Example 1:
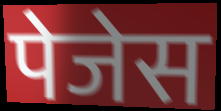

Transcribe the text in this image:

पेजेस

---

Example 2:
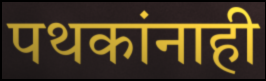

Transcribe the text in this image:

पथकांनाही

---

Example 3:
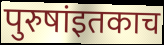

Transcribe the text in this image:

पुरुषांइतकाच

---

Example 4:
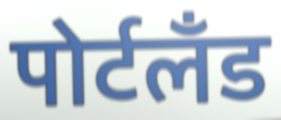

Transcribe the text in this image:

पोर्टलॅंड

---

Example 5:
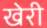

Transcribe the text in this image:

खेरी